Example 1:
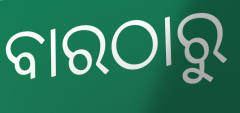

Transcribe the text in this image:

ବାରଠାରୁ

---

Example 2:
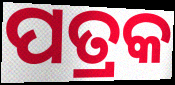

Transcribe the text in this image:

ପତ୍ରକ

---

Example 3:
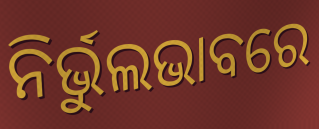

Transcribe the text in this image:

ନିର୍ଭୁଲଭାବରେ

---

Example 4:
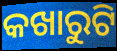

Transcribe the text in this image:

କଖାରୁଟି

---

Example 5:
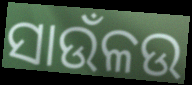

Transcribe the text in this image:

ସାଉଁଳଉ